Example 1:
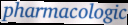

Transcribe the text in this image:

pharmacologic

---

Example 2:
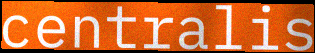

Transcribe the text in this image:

centralis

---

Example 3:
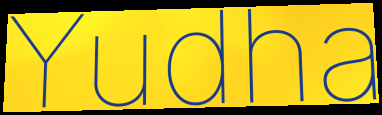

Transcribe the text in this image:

Yudha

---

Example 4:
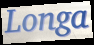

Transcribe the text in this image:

Longa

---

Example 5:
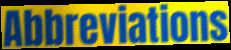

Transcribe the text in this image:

Abbreviations